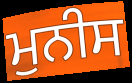
ਮੁਨੀਸ